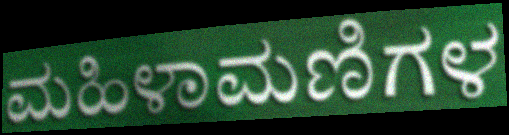
ಮಹಿಳಾಮಣಿಗಳ